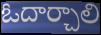
ఓదార్చాలి